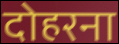
दोहरना